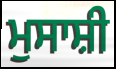
ਮੁਸਾਸ਼ੀ